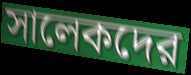
সালেকদের